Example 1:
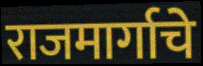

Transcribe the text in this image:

राजमार्गाचे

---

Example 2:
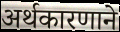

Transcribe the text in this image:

अर्थकारणाने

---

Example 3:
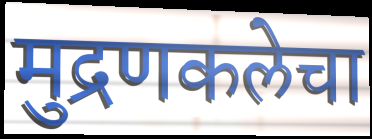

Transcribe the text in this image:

मुद्रणकलेचा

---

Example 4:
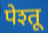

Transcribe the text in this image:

पेश्तू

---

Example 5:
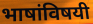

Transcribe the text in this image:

भाषांविषयी